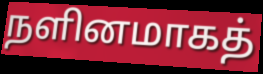
நளினமாகத்